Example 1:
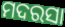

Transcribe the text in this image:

ମଦରସା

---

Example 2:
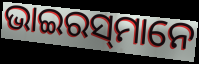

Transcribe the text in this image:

ଭାଇରସ୍‌ମାନେ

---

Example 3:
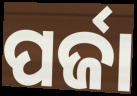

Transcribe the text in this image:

ପର୍ଜା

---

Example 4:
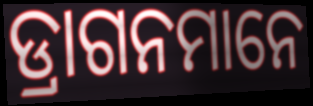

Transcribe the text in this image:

ଡ୍ରାଗନମାନେ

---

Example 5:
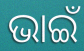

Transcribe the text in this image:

ଭାଇଁ